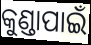
କୁଣ୍ଡାପାଇଁ